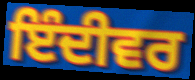
ਇੰਦੀਵਰ